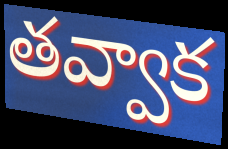
తవ్వాక